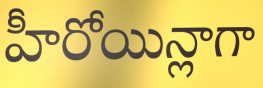
హీరోయిన్లాగా